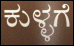
ಕುಳ್ಳಗೆ